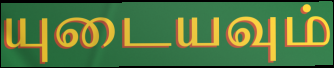
யுடையவும்